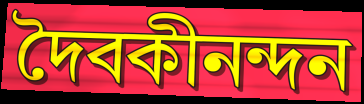
দৈবকীনন্দন